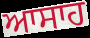
ਆਸਾਹ